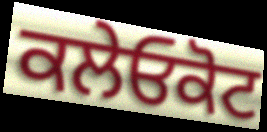
ਕਲੇਓਕੋਟ